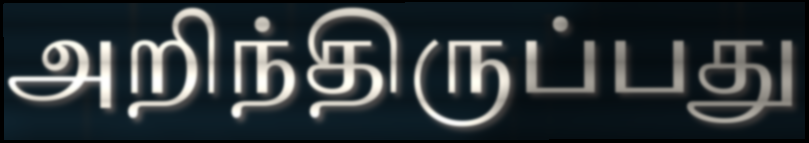
அறிந்திருப்பது